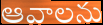
ఆవాలను